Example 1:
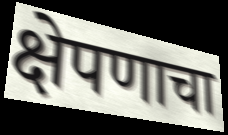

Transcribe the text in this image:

क्षेपणाचा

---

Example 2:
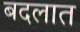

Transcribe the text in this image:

बदलात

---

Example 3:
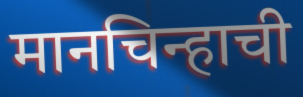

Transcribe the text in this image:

मानचिन्हाची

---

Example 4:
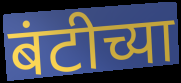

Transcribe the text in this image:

बंटीच्या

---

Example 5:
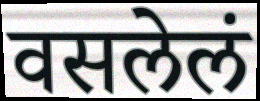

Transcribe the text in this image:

वसलेलं